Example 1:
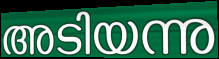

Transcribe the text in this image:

അടിയന്നു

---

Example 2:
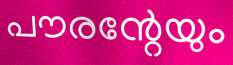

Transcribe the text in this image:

പൗരന്റേയും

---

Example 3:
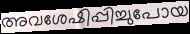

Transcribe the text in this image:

അവശേഷിപ്പിച്ചുപോയ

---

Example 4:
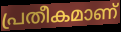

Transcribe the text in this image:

പ്രതീകമാണ്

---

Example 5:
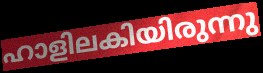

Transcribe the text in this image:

ഹാളിലകിയിരുന്നു